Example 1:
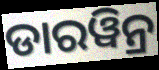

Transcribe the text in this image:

ଡାରୱିନ୍ର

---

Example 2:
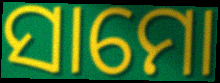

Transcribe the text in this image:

ସାମୋ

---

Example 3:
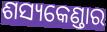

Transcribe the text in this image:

ଶସ୍ୟକେଣ୍ଡାର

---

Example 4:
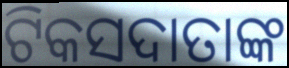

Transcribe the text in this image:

ଟିକସଦାତାଙ୍କ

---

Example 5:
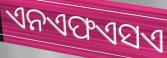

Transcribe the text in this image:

ଏନଏଫଏସଏ